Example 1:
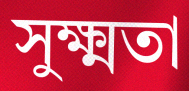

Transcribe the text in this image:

সুক্ষ্মতা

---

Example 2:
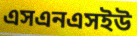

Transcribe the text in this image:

এসএনএসইউ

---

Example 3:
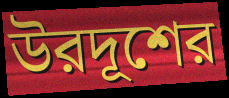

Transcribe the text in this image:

উরদূশের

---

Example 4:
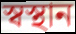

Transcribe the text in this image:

স্বস্থান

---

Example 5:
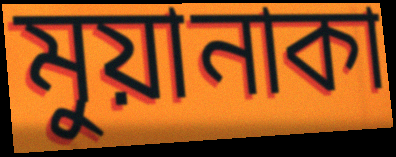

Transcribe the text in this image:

মুয়ানাকা